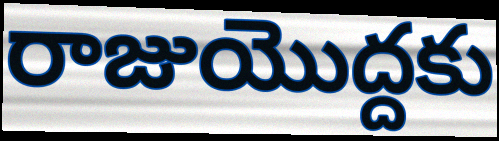
రాజుయొద్దకు